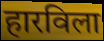
हारविला